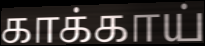
காக்காய்